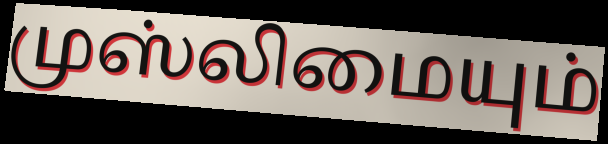
முஸ்லிமையும்